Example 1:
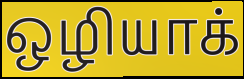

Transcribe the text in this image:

ஒழியாக்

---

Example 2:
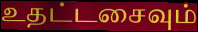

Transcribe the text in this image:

உதட்டசைவும்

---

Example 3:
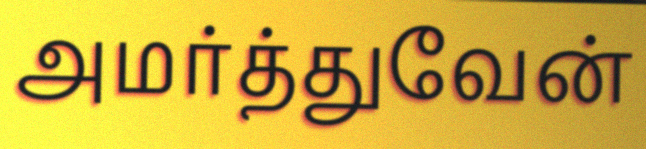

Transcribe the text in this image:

அமர்த்துவேன்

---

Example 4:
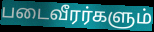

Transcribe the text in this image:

படைவீரர்களும்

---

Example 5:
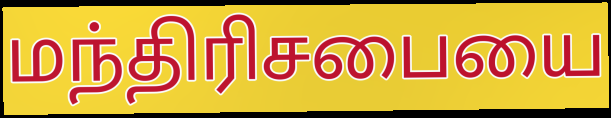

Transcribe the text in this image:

மந்திரிசபையை